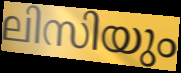
ലിസിയും